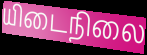
யிடைநிலை